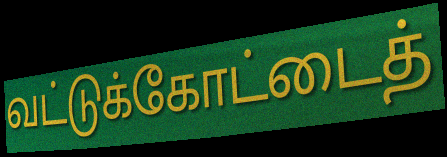
வட்டுக்கோட்டைத்